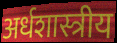
अर्धशास्त्रीय